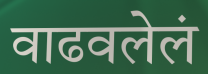
वाढवलेलं